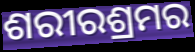
ଶରୀରଶ୍ରମର